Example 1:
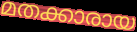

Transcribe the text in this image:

മതക്കാരായ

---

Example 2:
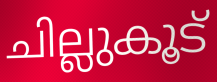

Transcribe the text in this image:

ചില്ലുകൂട്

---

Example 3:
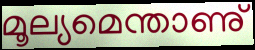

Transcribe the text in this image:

മൂല്യമെന്താണു്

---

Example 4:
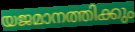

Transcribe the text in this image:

യജമാനത്തിക്കും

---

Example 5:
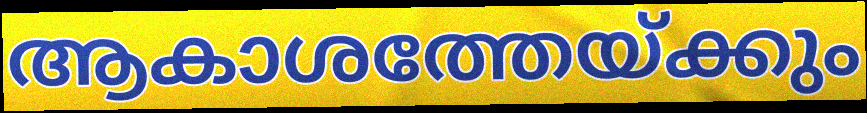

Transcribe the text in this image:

ആകാശത്തേയ്ക്കും